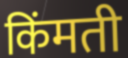
किंमती